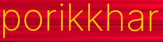
porikkhar